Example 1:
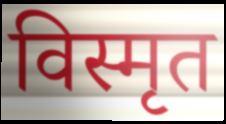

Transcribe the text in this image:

विस्मृत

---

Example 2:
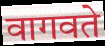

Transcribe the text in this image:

वागवते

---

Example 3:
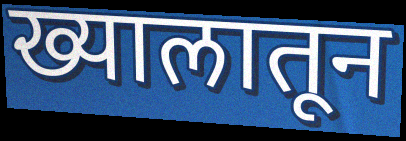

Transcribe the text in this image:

ख्यालातून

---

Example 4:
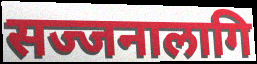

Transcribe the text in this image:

सज्जनालागि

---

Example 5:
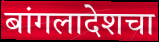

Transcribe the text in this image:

बांगलादेशचा